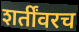
शर्तींवरच